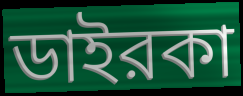
ডাইরকা